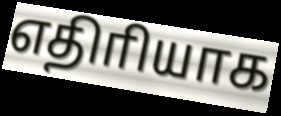
எதிரியாக